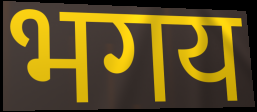
भगय